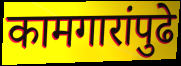
कामगारांपुढे